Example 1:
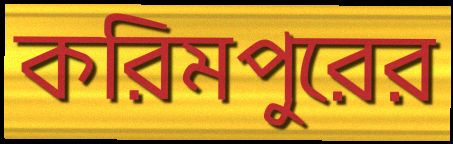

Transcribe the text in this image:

করিমপুরের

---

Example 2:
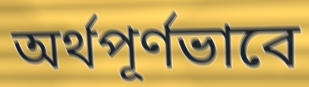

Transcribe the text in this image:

অর্থপূর্ণভাবে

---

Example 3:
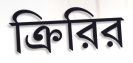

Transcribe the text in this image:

ক্রিরির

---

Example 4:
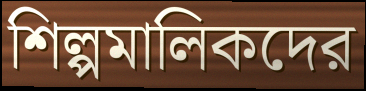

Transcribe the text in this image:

শিল্পমালিকদের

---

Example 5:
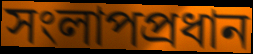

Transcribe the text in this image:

সংলাপপ্রধান